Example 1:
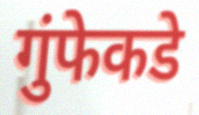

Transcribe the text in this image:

गुंफेकडे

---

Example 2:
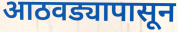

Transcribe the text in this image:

आठवड्यापासून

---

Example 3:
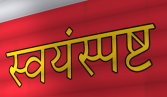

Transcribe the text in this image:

स्वयंस्पष्ट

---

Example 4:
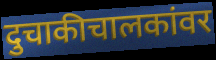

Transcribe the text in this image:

दुचाकीचालकांवर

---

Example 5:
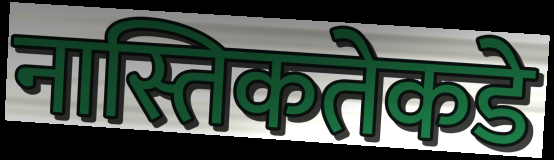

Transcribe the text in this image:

नास्तिकतेकडे